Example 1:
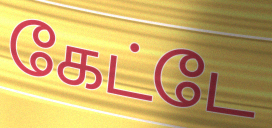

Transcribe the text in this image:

கேட்டே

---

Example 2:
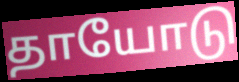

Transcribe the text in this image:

தாயோடு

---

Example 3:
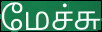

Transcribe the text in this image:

மேச்சு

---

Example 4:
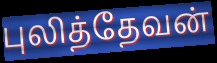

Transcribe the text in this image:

புலித்தேவன்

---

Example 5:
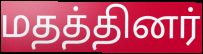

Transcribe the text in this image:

மதத்தினர்